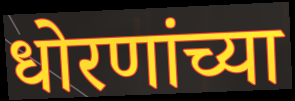
धोरणांच्या